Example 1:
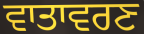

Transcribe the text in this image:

ਵਾਤਾਵਰਣ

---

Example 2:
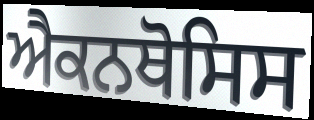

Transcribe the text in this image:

ਐਕਨਥੋਸਿਸ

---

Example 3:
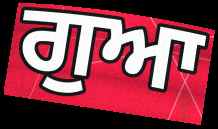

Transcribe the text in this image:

ਗੁਆ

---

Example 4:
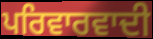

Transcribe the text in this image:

ਪਰਿਵਾਰਵਾਦੀ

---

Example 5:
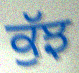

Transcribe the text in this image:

ਕੁੱਝ